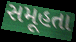
સમૂહતા